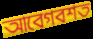
আবেগবশত